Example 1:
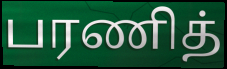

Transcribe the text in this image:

பரணித்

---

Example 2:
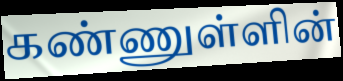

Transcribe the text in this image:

கண்ணுள்ளின்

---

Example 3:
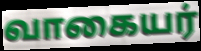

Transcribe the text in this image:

வாகையர்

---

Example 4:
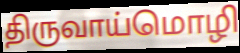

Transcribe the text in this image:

திருவாய்மொழி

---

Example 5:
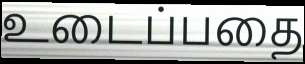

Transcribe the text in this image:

உடைப்பதை